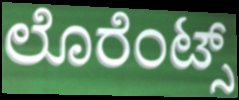
ಲೊರೆಂಟ್ಸ್